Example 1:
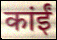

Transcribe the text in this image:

कांईं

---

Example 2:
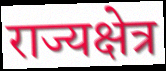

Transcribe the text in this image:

राज्यक्षेत्र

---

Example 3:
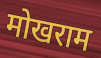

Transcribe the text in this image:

मोखराम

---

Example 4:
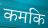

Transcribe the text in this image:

कमकि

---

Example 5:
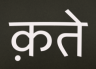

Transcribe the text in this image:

क़ते